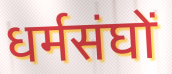
धर्मसंघों